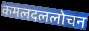
कमलदललोचन